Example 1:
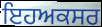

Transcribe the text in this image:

ਇਹਅਕਸਰ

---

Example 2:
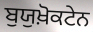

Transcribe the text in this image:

ਬੁਯੁਖ਼ੋਕਟੇਨ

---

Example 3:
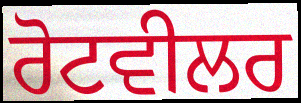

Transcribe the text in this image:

ਰੋਟਵੀਲਰ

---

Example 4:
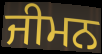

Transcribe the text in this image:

ਜੀਮਨ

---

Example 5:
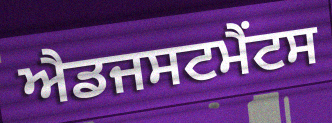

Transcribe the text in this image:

ਐਡਜਸਟਮੈਂਟਸ